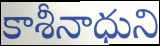
కాశీనాధుని